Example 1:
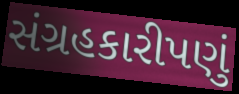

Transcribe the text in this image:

સંગ્રહકારીપણું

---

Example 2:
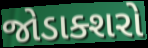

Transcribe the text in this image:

જોડાક્શરો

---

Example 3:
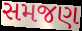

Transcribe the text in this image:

સમજણ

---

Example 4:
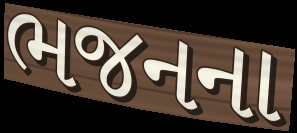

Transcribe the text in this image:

ભજનના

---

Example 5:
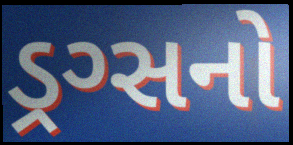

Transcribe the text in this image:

ડ્રગ્સનો